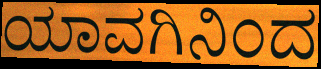
ಯಾವಗಿನಿಂದ